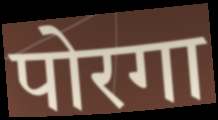
पोरगा